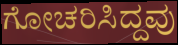
ಗೋಚರಿಸಿದ್ದವು